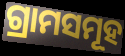
ଗ୍ରାମସମୂହ